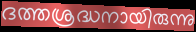
ദത്തശ്രദ്ധനായിരുന്നു